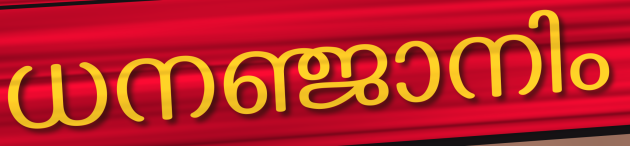
ധനഞ്ജാനിം